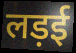
लड़ई